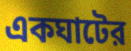
একঘাটের